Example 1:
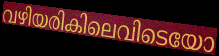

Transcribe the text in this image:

വഴിയരികിലെവിടെയോ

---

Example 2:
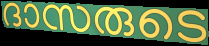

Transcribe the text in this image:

ദാസരുടെ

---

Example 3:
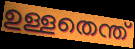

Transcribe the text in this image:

ഉള്ളതെന്ത്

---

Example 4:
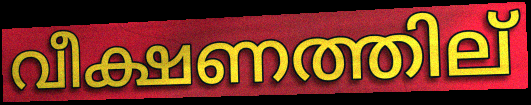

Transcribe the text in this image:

വീക്ഷണത്തില്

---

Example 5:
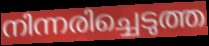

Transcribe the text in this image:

നിന്നരിച്ചെടുത്ത